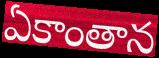
ఏకాంతాన